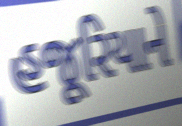
હજૂરિયાને